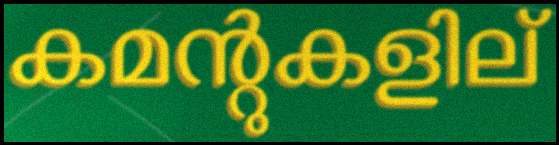
കമന്റുകളില്